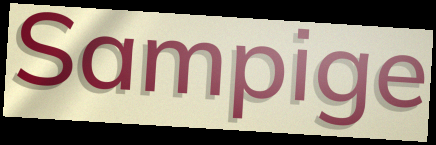
Sampige